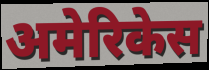
अमेरिकेस